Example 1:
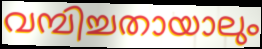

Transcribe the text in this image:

വമ്പിച്ചതായാലും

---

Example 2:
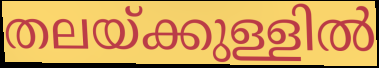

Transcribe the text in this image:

തലയ്ക്കുള്ളിൽ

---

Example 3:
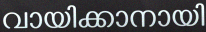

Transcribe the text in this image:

വായിക്കാനായി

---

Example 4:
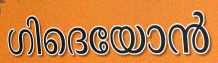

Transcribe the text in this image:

ഗിദെയോൻ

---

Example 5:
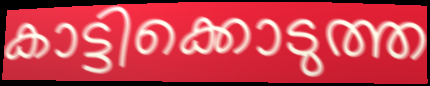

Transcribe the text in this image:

കാട്ടിക്കൊടുത്ത